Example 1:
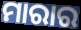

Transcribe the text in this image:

ମାରାର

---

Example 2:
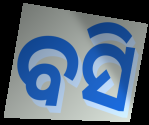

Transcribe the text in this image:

ବସି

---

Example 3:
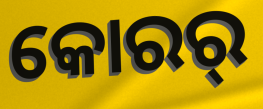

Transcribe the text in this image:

କୋରର୍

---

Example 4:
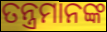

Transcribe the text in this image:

ତନ୍ତ୍ରମାନଙ୍କ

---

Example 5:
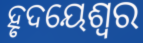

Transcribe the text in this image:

ହୃଦୟେଶ୍ୱର